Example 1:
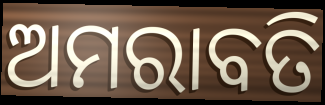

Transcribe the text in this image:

ଅମରାବତି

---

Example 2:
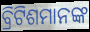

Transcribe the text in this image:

ବ୍ରିଟିଶମାନଙ୍କ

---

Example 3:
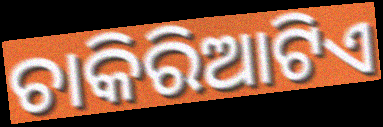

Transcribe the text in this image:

ଚାକିରିଆଟିଏ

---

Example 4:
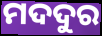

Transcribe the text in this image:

ମଦଦୁର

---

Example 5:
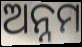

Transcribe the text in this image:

ଅନ୍ନମ